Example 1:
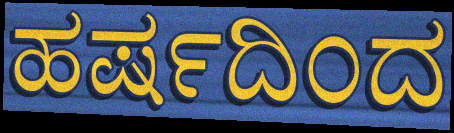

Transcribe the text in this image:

ಹರ್ಷದಿಂದ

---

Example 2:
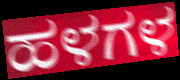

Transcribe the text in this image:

ಹಳಗಳ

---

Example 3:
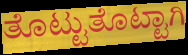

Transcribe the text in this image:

ತೊಟ್ಟುತೊಟ್ಟಾಗಿ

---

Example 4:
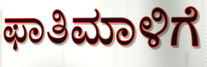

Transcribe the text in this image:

ಫಾತಿಮಾಳಿಗೆ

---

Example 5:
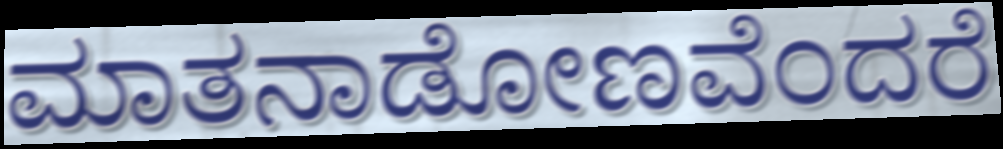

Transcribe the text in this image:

ಮಾತನಾಡೋಣವೆಂದರೆ